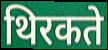
थिरकते